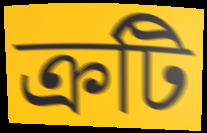
ক্রটি